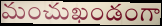
మంచుఖండంగా